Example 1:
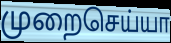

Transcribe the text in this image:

முறைசெய்யா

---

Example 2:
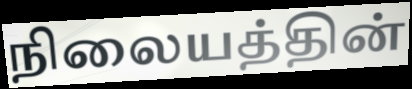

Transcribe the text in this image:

நிலையத்தின்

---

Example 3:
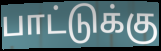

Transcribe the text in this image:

பாட்டுக்கு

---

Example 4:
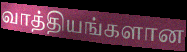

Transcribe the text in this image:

வாத்தியங்களான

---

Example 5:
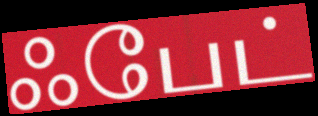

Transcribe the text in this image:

ஃபேட்